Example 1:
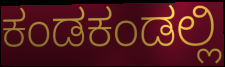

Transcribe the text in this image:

ಕಂಡಕಂಡಲ್ಲಿ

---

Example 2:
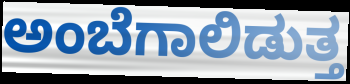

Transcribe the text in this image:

ಅಂಬೆಗಾಲಿಡುತ್ತ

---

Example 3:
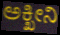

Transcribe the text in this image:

ಅಕ್ಖೀನಿ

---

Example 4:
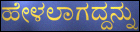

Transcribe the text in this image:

ಹೇಳಲಾಗದ್ದನ್ನು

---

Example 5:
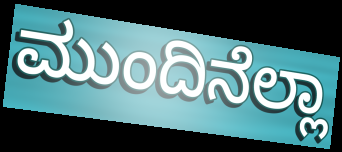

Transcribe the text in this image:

ಮುಂದಿನೆಲ್ಲಾ